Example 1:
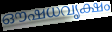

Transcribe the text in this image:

ഔഷധവൃക്ഷം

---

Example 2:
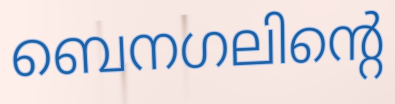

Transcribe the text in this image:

ബെനഗലിന്റെ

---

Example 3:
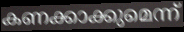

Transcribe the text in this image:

കണക്കാക്കുമെന്ന്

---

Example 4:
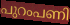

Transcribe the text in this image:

പുറംപണി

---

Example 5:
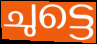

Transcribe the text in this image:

ചുട്ടെ